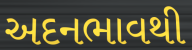
અદનભાવથી